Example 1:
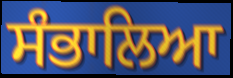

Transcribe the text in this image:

ਸੰਭਾਲਿਆ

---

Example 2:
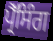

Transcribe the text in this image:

ਪ੍ਰੈੱਸਿੰਗ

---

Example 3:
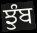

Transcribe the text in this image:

ਝੁੰਬ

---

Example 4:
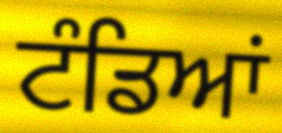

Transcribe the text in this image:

ਟੰਡਿਆਂ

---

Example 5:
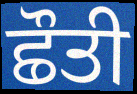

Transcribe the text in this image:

ਛੌਤੀ